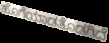
ಹೊಗೆಯಾಡತೊಡಗಿದೆ